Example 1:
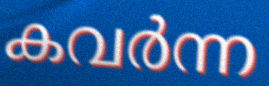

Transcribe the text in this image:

കവർന്ന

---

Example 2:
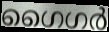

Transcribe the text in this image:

ഗൈഗർ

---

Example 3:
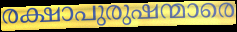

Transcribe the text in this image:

രക്ഷാപുരുഷന്മാരെ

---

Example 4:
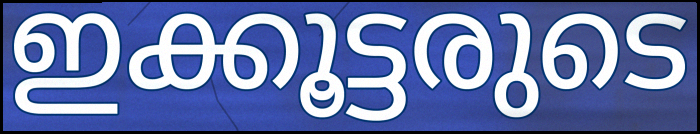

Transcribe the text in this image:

ഇക്കൂട്ടരുടെ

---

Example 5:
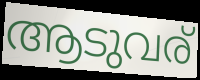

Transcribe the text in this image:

ആടുവര്